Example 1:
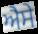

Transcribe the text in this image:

ਐੇਸੇ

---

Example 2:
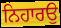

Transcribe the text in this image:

ਨਿਹਾਰਉ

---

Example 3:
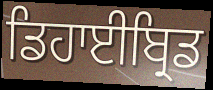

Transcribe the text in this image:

ਡਿਹਾਈਬ੍ਰਿਡ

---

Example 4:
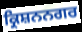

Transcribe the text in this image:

ਕ੍ਰਿਸ਼ਨਨਗਰ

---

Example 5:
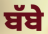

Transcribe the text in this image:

ਬੱਬੇ